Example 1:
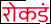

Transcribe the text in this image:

रोकडं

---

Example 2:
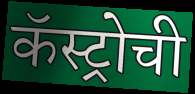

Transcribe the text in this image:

कॅस्ट्रोची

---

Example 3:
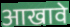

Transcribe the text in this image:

आखावे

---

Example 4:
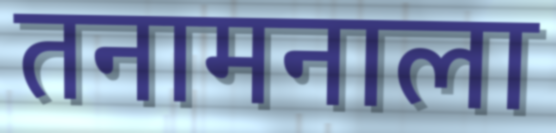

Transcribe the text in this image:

तनामनाला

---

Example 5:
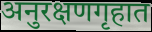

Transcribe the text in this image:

अनुरक्षणगृहात